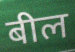
बील